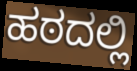
ಹಠದಲ್ಲಿ